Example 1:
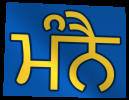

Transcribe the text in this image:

ਮੰਨੈ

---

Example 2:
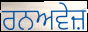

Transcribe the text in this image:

ਰਨਅਵੇਜ਼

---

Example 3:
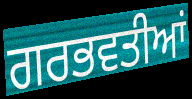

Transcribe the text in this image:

ਗਰਭਵਤੀਆਂ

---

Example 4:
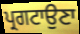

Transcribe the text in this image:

ਪ੍ਰਗਟਾਉਣਾ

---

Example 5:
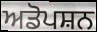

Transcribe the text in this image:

ਅਡੋਪਸ਼ਨ